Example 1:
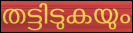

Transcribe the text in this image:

തട്ടിടുകയും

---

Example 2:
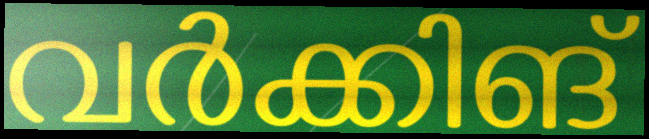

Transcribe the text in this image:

വർക്കിങ്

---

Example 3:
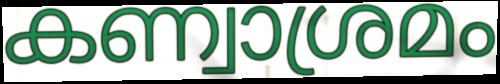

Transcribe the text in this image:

കണ്വാശ്രമം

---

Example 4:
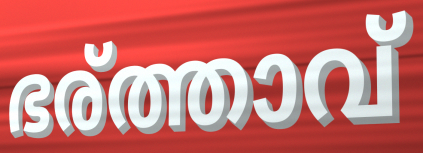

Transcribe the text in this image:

ഭര്ത്താവ്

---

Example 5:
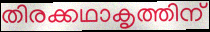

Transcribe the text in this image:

തിരക്കഥാകൃത്തിന്